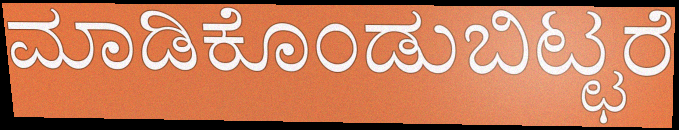
ಮಾಡಿಕೊಂಡುಬಿಟ್ಟರೆ